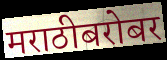
मराठीबरोबर